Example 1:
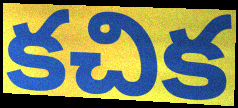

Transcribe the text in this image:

కచిక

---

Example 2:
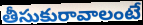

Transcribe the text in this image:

తీసుకురావాలంటే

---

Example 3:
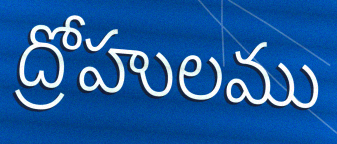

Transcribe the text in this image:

ద్రోహులము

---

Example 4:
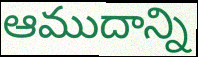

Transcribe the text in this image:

ఆముదాన్ని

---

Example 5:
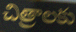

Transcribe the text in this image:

చిత్రాలకు